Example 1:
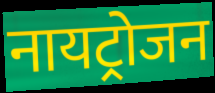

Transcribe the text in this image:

नायट्रोजन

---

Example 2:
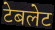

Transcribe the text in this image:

टेबलेट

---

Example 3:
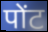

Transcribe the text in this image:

पोंट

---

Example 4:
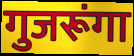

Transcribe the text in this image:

गुजरूंगा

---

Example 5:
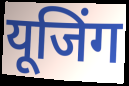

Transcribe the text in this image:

यूजिंग